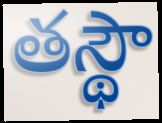
తస్థౌ